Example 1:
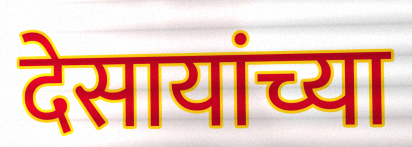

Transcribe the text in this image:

देसायांच्या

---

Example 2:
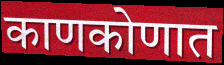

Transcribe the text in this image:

काणकोणात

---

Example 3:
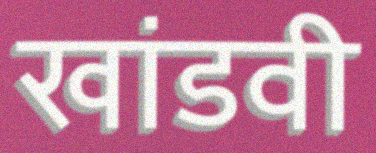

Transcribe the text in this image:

खांडवी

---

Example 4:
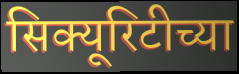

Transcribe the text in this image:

सिक्यूरिटीच्या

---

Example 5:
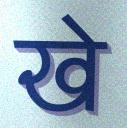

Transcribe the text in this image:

खे